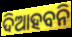
ଦିଆହବନି